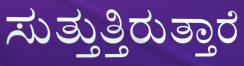
ಸುತ್ತುತ್ತಿರುತ್ತಾರೆ